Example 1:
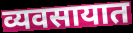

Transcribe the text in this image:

व्यवसायात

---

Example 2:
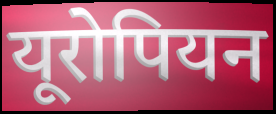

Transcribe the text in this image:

यूरोपियन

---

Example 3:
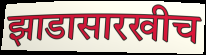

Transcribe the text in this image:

झाडासारखीच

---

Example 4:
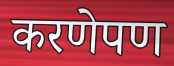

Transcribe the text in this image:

करणेपण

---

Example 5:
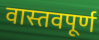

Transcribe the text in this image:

वास्तवपूर्ण